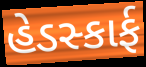
હેડસ્કાર્ફ